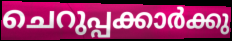
ചെറുപ്പക്കാർക്കു